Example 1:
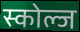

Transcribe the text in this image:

स्कोल्ज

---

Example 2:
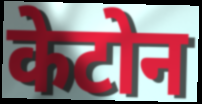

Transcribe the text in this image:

केटोन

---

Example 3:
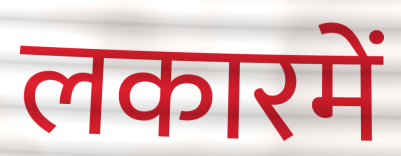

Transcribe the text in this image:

लकारमें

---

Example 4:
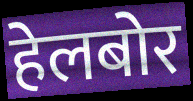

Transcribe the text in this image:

हेलबोर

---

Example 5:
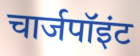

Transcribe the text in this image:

चार्जपॉइंट